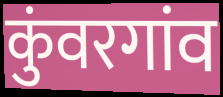
कुंवरगांव